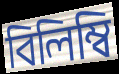
বিলিম্বি